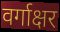
वर्गाक्षर